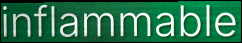
inflammable